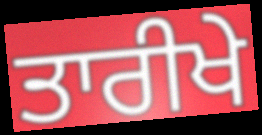
ਤਾਰੀਖੇ